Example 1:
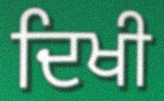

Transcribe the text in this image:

ਦਿਖੀ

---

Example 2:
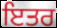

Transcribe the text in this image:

ਇਤਰ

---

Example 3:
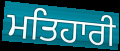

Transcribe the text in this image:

ਮਤਿਹਾਰੀ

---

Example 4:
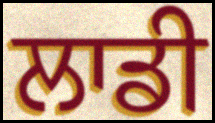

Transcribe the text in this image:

ਲਾਡੀ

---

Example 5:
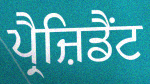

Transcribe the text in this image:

ਪ੍ਰੈਜ਼ਿਡੈਂਟ